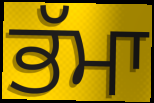
ਭੱਮਾ